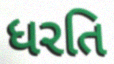
ધરતિ